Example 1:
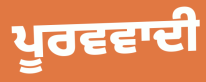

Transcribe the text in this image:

ਪੂਰਵਵਾਦੀ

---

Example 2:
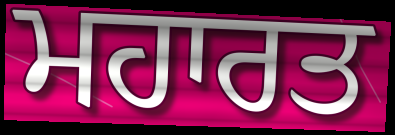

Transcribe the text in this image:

ਮਹਾਰਤ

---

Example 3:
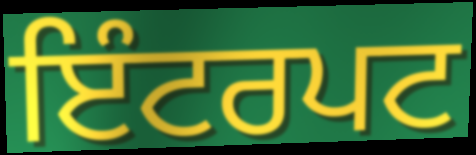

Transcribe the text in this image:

ਇੰਟਰਪਟ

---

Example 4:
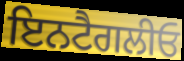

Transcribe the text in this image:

ਇਨਟੈਗਲੀਓ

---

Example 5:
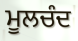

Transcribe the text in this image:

ਮੂਲਚੰਦ